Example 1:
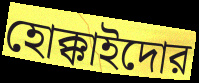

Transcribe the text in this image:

হোক্কাইদোর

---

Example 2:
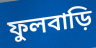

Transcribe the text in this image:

ফুলবাড়ি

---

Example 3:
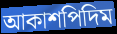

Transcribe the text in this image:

আকাশপিদিম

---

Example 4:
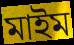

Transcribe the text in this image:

মাইম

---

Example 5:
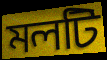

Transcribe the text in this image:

মলটি